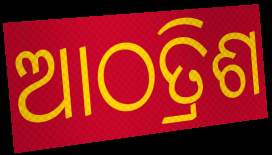
ଆଠତ୍ରିଶ